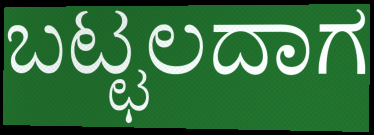
ಬಟ್ಟಲದಾಗ